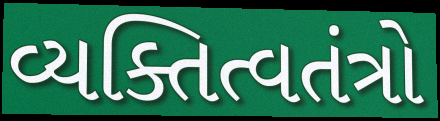
વ્યક્તિત્વતંત્રો